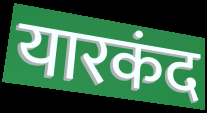
यारकंद